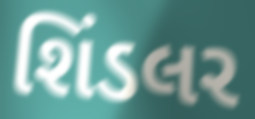
શિંડલર